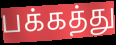
பக்கத்து